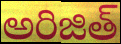
అరిజిత్